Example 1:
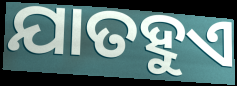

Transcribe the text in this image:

ଯାତହୁଏ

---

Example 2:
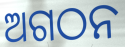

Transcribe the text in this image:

ଅଗଠନ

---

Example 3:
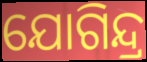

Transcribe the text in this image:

ଯୋଗିନ୍ଦ୍ର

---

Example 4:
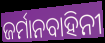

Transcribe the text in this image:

ଜର୍ମାନବାହିନୀ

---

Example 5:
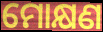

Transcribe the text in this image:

ମୋକ୍ଷଣ